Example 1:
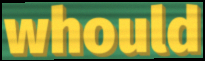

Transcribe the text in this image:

whould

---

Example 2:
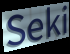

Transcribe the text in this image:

Seki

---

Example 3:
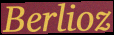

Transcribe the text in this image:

Berlioz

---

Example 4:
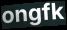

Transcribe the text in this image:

ongfk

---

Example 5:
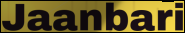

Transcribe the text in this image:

Jaanbari